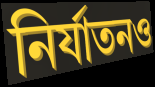
নির্যাতনও